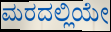
ಮರದಲ್ಲಿಯೇ